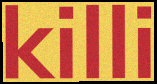
killi